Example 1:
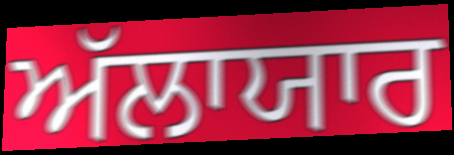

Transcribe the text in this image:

ਅੱਲਾਯਾਰ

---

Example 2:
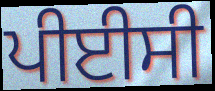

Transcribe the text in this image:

ਪੀਈਸੀ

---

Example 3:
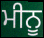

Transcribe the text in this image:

ਮੀਨੂ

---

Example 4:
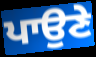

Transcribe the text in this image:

ਪਾਉਣੇ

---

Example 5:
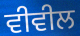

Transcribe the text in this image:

ਵੀਵੀਲ